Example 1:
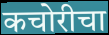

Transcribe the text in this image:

कचोरीचा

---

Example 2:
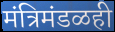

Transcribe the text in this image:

मंत्रिमंडळही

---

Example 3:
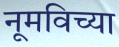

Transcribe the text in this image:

नूमविच्या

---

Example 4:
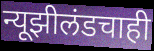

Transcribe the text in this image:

न्यूझीलंडचाही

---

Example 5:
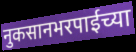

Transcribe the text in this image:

नुकसानभरपाईच्या